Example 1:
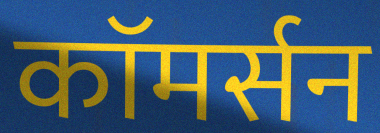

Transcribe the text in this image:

कॉमर्सन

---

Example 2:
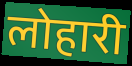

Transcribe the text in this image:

लोहारी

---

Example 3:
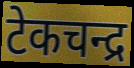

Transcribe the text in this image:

टेकचन्द्र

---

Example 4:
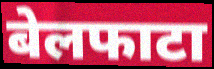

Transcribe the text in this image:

बेलफाटा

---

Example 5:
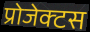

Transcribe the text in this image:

प्रोजेक्‍टस